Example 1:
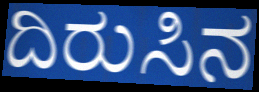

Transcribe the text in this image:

ದಿರುಸಿನ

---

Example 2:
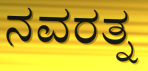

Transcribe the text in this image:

ನವರತ್ನ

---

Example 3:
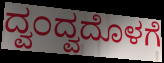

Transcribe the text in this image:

ದ್ವಂದ್ವದೊಳಗೆ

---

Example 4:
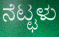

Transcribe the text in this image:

ನೆಟ್ಟಳು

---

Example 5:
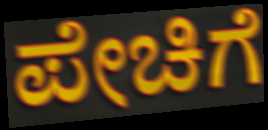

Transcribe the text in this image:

ಪೇಚಿಗೆ